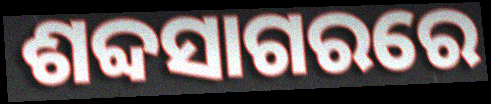
ଶବ୍ଦସାଗରରେ